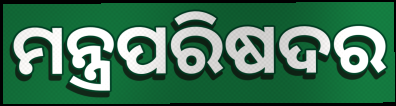
ମନ୍ତ୍ରପରିଷଦର